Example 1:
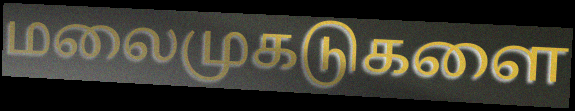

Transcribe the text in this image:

மலைமுகடுகளை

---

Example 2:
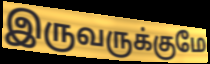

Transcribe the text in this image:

இருவருக்குமே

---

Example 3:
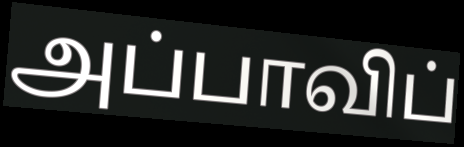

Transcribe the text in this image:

அப்பாவிப்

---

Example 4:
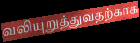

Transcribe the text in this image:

வலியுறுத்துவதற்காக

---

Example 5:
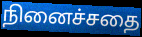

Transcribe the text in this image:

நினைச்சதை